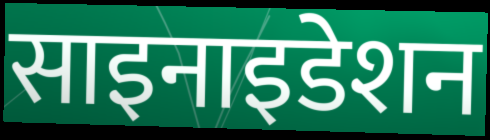
साइनाइडेशन